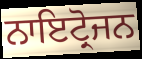
ਨਾਇਟ੍ਰੋਜਨ